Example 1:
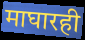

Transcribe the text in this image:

माघारही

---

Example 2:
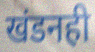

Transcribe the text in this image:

खंडनही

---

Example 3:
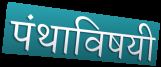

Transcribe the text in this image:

पंथाविषयी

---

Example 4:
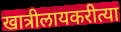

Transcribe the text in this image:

खात्रीलायकरीत्या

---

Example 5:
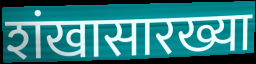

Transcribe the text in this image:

शंखासारख्या